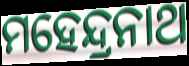
ମହେନ୍ଦ୍ରନାଥ